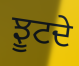
ਝੂਟਦੇ